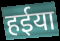
हईया